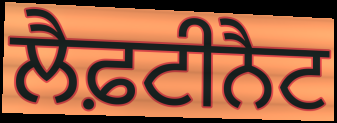
ਲੈਫ਼ਟੀਨੈਟ